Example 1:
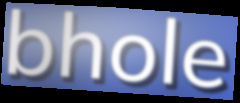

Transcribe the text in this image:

bhole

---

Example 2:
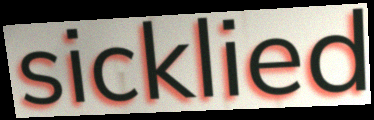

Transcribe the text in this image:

sicklied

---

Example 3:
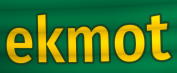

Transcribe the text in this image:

ekmot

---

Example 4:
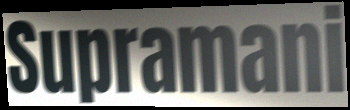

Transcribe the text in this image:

Supramani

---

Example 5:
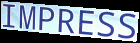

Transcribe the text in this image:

IMPRESS